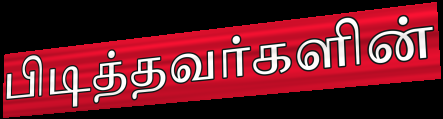
பிடித்தவர்களின்